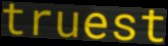
truest